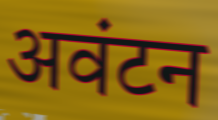
अवंटन